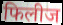
फिलीज